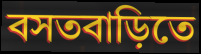
বসতবাড়িতে